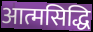
आत्मसिद्धि